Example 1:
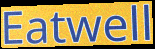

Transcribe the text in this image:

Eatwell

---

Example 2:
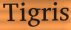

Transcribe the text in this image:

Tigris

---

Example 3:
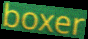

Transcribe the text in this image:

boxer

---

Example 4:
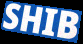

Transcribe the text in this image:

SHIB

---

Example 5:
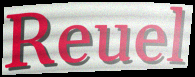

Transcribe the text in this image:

Reuel